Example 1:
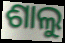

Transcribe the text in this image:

ଶାଲୁ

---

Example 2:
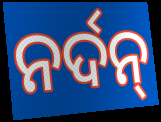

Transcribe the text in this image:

ନର୍ଦନ୍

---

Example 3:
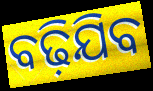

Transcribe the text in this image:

ବଢ଼ିଯିବ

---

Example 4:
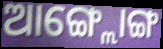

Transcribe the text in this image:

ଆଙ୍ଗ୍ଲୋଙ୍ଗ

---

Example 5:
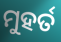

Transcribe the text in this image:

ମୁହର୍ତ